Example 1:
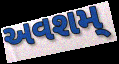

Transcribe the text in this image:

અવશમ્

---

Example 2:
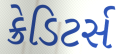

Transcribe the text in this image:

ક્રેડિટર્સ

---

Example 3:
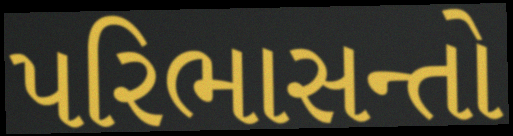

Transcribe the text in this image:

પરિભાસન્તો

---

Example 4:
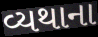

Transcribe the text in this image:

વ્યથાના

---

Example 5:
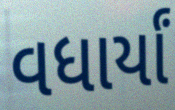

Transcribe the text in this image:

વધાર્યાં